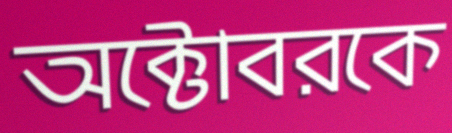
অক্টোবরকে